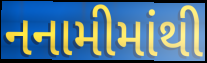
નનામીમાંથી